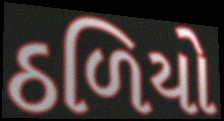
ઠળિયો